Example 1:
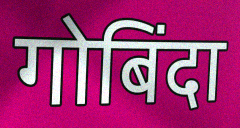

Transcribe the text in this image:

गोबिंदा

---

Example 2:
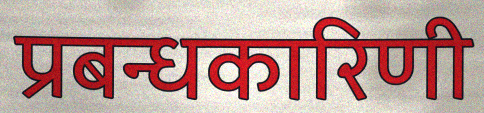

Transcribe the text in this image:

प्रबन्धकारिणी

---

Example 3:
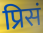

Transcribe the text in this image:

प्रिसं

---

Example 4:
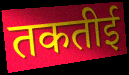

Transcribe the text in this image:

तकतीई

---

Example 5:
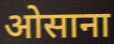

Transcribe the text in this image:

ओसाना